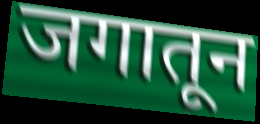
जगातून